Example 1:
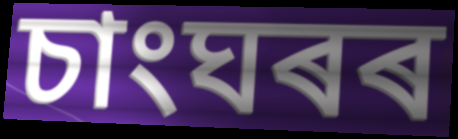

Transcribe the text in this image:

চাংঘৰৰ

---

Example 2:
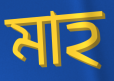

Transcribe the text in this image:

মাহ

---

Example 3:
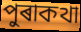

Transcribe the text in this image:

পুৰাকথা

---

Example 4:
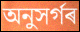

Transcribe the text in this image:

অনুসৰ্গৰ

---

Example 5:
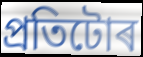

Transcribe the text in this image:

প্ৰতিটোৰ